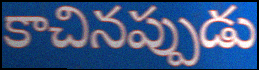
కాచినప్పుడు